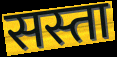
सस्‍ता